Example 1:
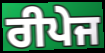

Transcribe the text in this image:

ਰੀਪੇਜ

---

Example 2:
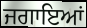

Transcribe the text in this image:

ਜਗਾਇਆਂ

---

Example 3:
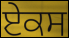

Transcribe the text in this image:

ਏਕਸ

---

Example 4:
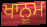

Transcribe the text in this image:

ਖਾਨੂਮ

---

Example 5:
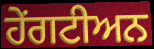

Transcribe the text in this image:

ਹੇਂਗਟੀਅਨ